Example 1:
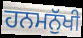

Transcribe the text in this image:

ਹਨਮਨੁੱਖੀ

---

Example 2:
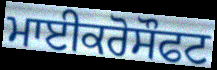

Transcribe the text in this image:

ਮਾਈਕਰੋਸੌਫਟ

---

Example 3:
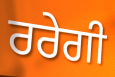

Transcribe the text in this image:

ਰਰੇਗੀ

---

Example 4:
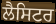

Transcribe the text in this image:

ਲੈਸਿਟਰ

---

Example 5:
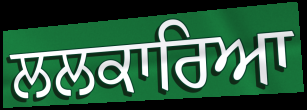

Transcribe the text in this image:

ਲਲਕਾਰਿਆ